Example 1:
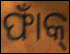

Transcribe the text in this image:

ଫାଁକ୍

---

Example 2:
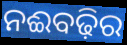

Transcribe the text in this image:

ନଈବଢ଼ିର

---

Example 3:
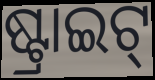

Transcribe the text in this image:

ଷ୍ଟ୍ରାଇଟ୍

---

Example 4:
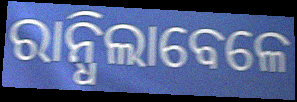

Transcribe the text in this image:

ରାନ୍ଧିଲାବେଳେ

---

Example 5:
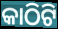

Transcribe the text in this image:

କାଠିଟି